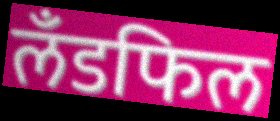
लँडफिल